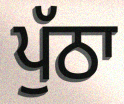
ਪੁੱਠਾ